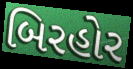
બિરહોર